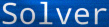
Solver